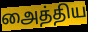
அைத்திய